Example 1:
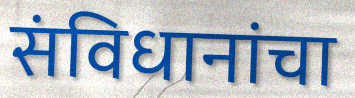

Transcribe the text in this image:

संविधानांचा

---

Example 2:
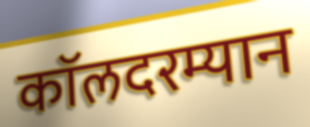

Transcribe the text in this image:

कॉलदरम्यान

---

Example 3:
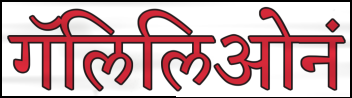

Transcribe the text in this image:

गॅलिलिओनं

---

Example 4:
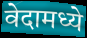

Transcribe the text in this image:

वेदामध्ये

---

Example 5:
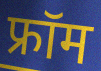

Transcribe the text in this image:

फ्रॉम